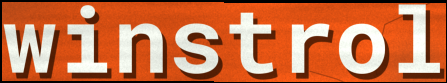
winstrol